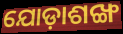
ଯୋଡ଼ାଶଙ୍ଖ